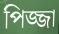
পিজ্জা